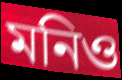
মনিও